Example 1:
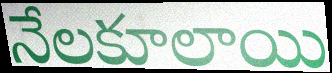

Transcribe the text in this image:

నేలకూలాయి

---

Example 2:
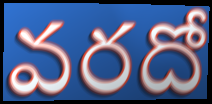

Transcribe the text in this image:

వరదో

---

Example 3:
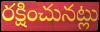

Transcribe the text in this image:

రక్షించునట్లు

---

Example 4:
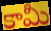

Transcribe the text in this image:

కామీ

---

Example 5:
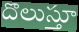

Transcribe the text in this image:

దొలుస్తూ